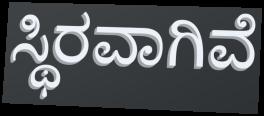
ಸ್ಥಿರವಾಗಿವೆ